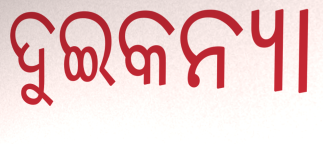
ଦୁଇକନ୍ୟା